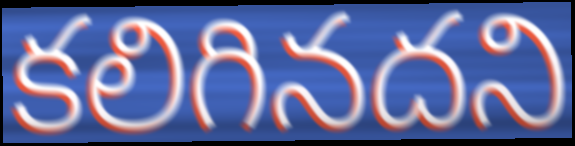
కలిగినదని